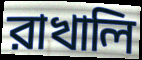
রাখালি